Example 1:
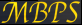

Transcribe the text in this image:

MBPS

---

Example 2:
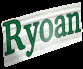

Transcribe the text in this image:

Ryoan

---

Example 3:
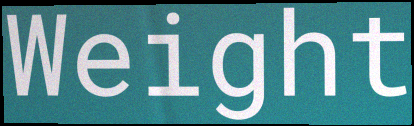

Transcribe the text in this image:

Weight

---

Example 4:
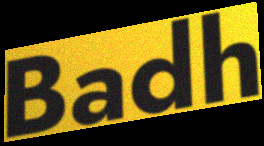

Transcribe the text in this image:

Badh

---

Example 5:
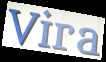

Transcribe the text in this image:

Vira